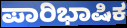
ಪಾರಿಭಾಷಿಕ